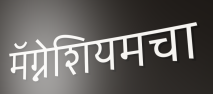
मॅग्नेशियमचा